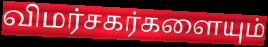
விமர்சகர்களையும்